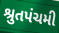
શ્રુતપંચમી